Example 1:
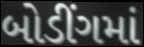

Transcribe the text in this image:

બોડીંગમાં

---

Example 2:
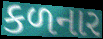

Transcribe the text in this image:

કળનાર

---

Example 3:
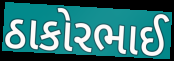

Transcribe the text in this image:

ઠાકોરભાઈ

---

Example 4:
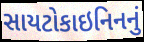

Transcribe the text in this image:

સાયટોકાઇનિનનું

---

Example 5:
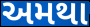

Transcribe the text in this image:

અમથા